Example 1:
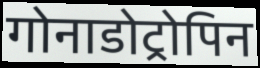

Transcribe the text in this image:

गोनाडोट्रोपिन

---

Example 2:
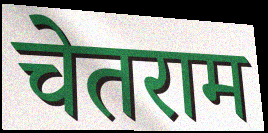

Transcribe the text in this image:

चेतराम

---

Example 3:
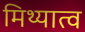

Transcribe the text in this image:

मिथ्‍यात्‍व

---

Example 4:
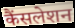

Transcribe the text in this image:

कैंसलेशन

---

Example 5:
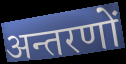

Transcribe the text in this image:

अन्तरणों